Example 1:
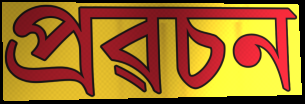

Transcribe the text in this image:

প্ৰৱচন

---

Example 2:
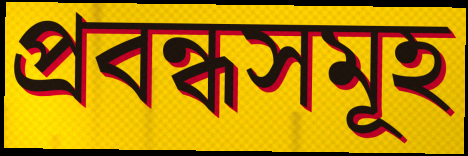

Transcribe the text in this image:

প্ৰবন্ধসমূহ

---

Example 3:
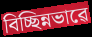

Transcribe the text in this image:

বিচ্ছিন্নভাৱে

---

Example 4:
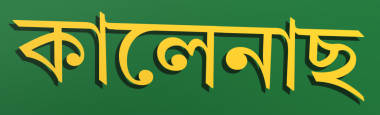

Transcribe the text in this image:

কালেনাছ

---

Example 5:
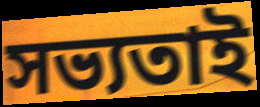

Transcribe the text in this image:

সভ্যতাই